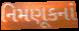
નિમણૂકનાં